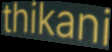
thikani